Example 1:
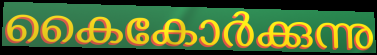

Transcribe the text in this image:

കൈകോർക്കുന്നു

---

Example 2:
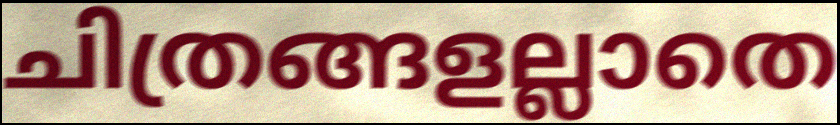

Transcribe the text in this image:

ചിത്രങ്ങളല്ലാതെ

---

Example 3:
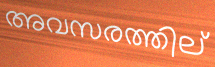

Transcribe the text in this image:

അവസരത്തില്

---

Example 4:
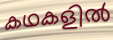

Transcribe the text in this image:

കഥകളിൽ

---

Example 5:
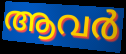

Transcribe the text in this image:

ആവർ